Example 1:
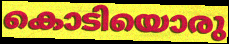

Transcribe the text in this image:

കൊടിയൊരു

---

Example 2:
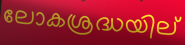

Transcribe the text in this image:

ലോകശ്രദ്ധയില്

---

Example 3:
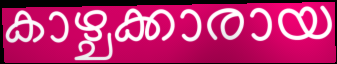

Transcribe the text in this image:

കാഴ്ചക്കാരായ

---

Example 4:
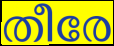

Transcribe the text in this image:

തീരേ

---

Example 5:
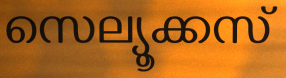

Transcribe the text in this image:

സെല്യൂക്കസ്